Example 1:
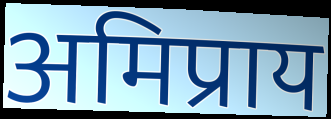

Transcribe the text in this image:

अमिप्राय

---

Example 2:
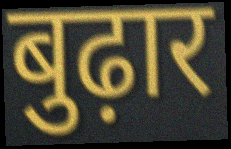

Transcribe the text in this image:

बुढ़ार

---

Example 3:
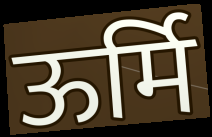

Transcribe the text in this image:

ऊर्मि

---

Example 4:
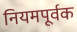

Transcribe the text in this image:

नियमपूर्वक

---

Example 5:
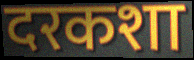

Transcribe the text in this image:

दरकशा